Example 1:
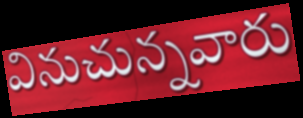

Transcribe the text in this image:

వినుచున్నవారు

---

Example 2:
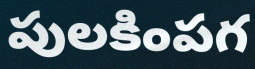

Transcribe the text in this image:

పులకింపగ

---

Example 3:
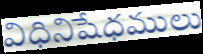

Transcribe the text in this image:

విధినిషేధములు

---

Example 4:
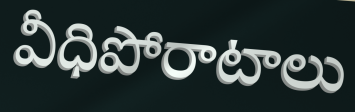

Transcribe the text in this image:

వీధిపోరాటాలు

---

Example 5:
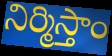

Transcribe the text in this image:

నిర్మిస్తాం